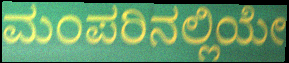
ಮಂಪರಿನಲ್ಲಿಯೇ